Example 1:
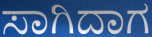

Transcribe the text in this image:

ಸಾಗಿದಾಗ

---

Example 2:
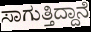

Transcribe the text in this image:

ಸಾಗುತ್ತಿದ್ದಾನೆ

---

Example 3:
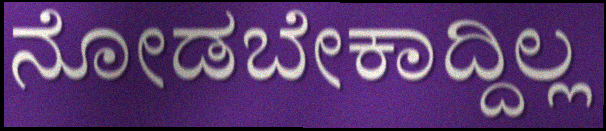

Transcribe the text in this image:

ನೋಡಬೇಕಾದ್ದಿಲ್ಲ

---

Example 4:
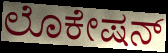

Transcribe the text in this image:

ಲೊಕೇಷನ್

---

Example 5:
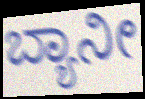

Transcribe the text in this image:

ಬ್ಯಾನೀ